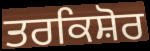
ਤਰਕਿਸ਼ੋਰ